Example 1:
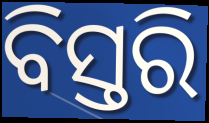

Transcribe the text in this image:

ବିସ୍ତରି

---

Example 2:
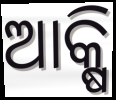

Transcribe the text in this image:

ଆକ୍ଷି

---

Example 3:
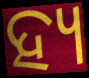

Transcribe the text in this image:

ହ୍ୟ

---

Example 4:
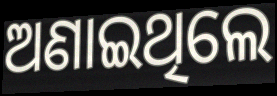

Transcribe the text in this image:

ଅଣାଇଥିଲେ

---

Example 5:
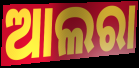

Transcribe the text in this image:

ଆଲରା